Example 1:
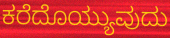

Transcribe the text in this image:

ಕರೆದೊಯ್ಯುವುದು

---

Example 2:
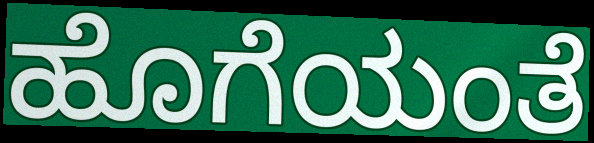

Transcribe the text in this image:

ಹೊಗೆಯಂತೆ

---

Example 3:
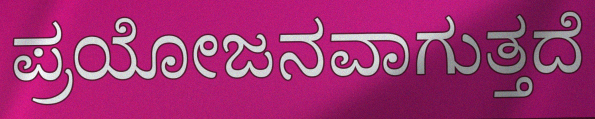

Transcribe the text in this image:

ಪ್ರಯೋಜನವಾಗುತ್ತದೆ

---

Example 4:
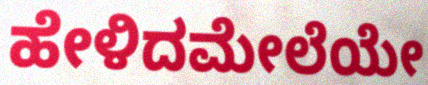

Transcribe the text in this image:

ಹೇಳಿದಮೇಲೆಯೇ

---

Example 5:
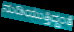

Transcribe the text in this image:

ನುಡಿಯುತ್ತಿದ್ದಂತೆ